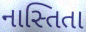
નાસ્તિતા